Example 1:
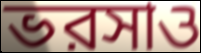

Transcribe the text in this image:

ভরসাও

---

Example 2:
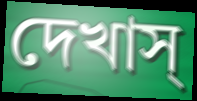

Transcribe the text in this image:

দেখাস্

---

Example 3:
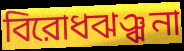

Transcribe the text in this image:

বিরোধঝঞ্ঝনা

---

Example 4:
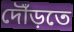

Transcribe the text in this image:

দৌঁড়তে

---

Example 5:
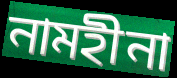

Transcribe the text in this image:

নামহীনা